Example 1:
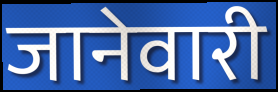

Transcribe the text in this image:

जानेवारी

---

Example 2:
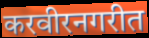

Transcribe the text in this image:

करवीरनगरीत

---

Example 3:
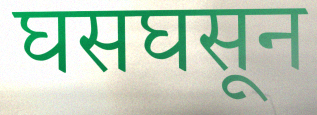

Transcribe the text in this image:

घसघसून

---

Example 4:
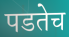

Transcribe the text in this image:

पडतेच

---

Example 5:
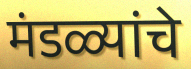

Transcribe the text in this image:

मंडळ्यांचे